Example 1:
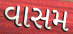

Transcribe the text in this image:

વાસમ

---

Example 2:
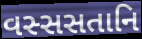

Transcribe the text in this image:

વસ્સસતાનિ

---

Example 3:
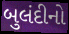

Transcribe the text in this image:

બુલંદીનો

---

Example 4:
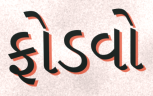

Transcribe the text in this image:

ફોડવો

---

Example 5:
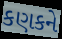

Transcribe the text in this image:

કણકને